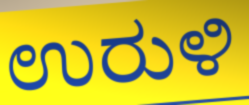
ಉರುಳಿ